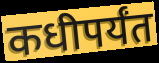
कधीपर्यंत